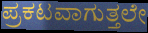
ಪ್ರಕಟವಾಗುತ್ತಲೇ